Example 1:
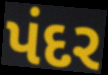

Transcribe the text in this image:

પંદર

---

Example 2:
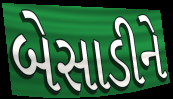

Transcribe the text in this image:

બેસાડીને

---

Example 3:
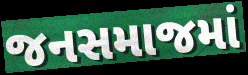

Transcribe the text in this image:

જનસમાજમાં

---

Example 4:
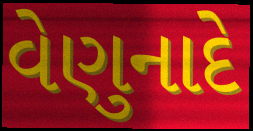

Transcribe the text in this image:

વેણુનાદે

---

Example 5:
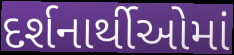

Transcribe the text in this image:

દર્શનાર્થીઓમાં